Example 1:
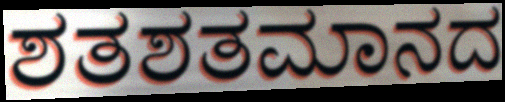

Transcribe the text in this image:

ಶತಶತಮಾನದ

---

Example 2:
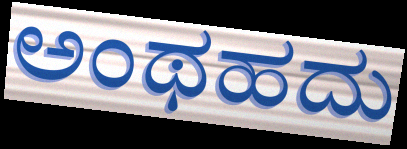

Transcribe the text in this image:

ಅಂಥಹದು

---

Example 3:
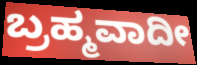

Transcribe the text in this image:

ಬ್ರಹ್ಮವಾದೀ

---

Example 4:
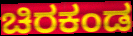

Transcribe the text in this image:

ಚಿರಕಂಡ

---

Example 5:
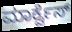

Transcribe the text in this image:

ಮಾರ್ಕ್ವೆಸ್